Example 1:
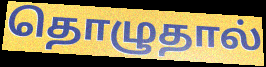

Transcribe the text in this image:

தொழுதால்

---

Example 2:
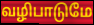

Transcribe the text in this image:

வழிபாடுமே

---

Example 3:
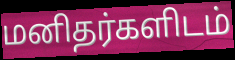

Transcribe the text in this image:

மனிதர்களிடம்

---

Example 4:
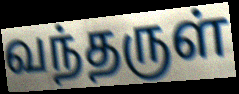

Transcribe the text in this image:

வந்தருள்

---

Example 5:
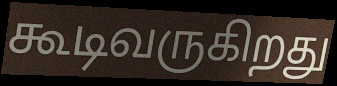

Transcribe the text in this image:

கூடிவருகிறது